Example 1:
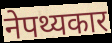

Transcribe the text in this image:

नेपथ्यकार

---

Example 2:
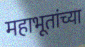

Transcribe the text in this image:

महाभूतांच्या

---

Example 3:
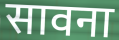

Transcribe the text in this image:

सावना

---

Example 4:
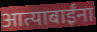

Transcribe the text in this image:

आत्याबाईंना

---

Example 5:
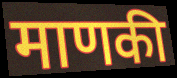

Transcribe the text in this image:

माणकी